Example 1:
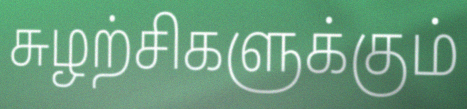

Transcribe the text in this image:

சுழற்சிகளுக்கும்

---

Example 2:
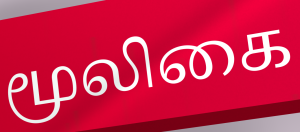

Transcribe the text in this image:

மூலிகை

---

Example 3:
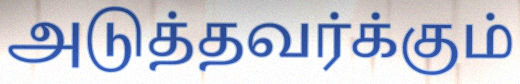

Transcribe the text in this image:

அடுத்தவர்க்கும்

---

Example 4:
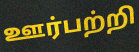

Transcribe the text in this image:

ஊர்பற்றி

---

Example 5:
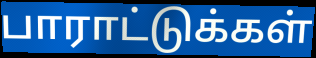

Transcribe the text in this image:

பாராட்டுக்கள்